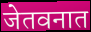
जेतवनात